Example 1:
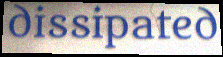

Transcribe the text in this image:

dissipated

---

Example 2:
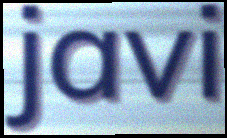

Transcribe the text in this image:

javi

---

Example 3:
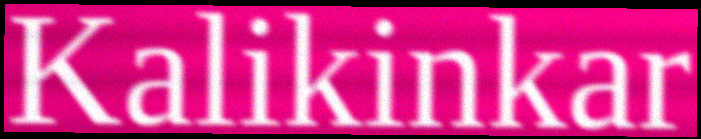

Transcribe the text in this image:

Kalikinkar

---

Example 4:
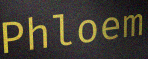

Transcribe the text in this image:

Phloem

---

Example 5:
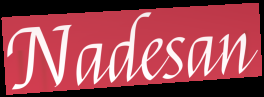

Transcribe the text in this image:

Nadesan